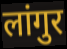
लांगुर